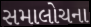
સમાલોચના